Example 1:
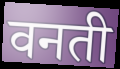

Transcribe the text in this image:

वनती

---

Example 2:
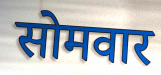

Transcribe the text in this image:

सोमवार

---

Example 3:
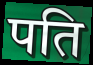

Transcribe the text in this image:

पति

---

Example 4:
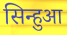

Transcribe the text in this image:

सिन्हुआ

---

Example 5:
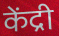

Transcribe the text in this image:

केंद्री